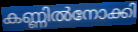
കണ്ണിൽനോക്കി